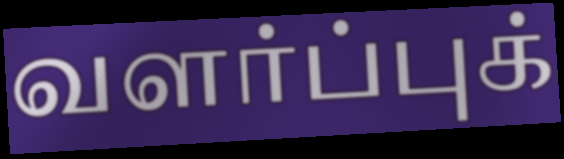
வளர்ப்புக்